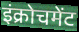
इंक्रोचमेंट